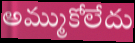
అమ్ముకోలేదు